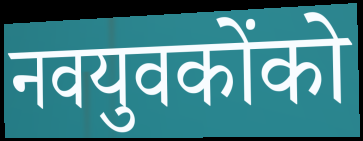
नवयुवकोंको